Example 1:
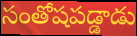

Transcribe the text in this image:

సంతోషపడ్డాడు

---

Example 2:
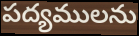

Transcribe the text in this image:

పద్యములను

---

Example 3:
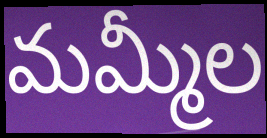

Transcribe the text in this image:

మమ్మీల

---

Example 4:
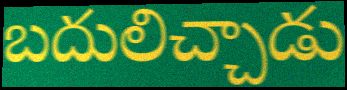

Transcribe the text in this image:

బదులిచ్చాడు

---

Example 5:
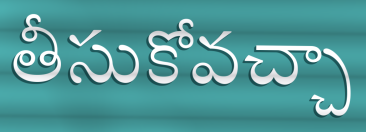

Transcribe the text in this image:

తీసుకోవచ్చా